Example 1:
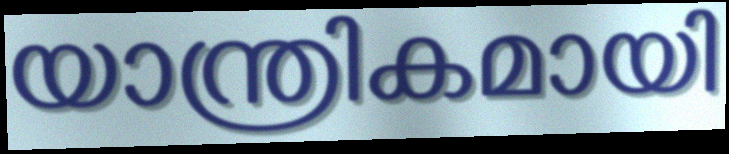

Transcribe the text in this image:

യാന്ത്രികമായി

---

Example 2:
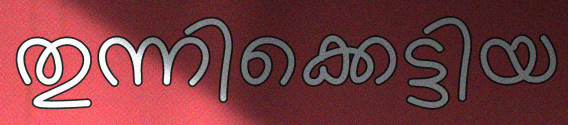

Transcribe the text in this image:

തുന്നിക്കെട്ടിയ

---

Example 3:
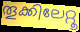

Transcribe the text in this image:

തൂക്കിലേറ്റൂ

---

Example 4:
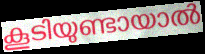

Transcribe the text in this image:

കൂടിയുണ്ടായാൽ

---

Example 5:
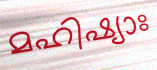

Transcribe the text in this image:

മഹിഷ്യാഃ